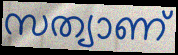
സത്യാണ്